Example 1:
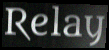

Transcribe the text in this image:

Relay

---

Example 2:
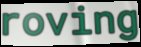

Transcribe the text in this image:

roving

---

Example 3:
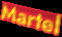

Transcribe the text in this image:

Martel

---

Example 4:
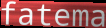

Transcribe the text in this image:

fatema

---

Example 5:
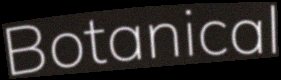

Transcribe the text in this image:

Botanical